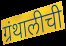
ग्रंथालीची